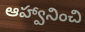
ఆహ్వానించి